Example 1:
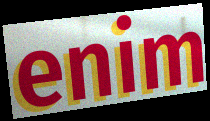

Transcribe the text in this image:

enim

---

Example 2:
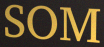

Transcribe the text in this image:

SOM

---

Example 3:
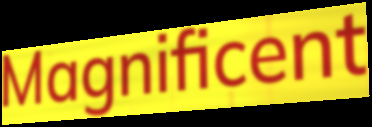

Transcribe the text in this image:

Magnificent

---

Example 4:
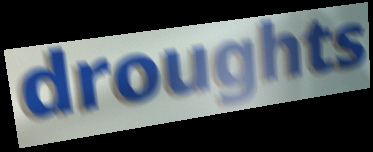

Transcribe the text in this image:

droughts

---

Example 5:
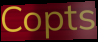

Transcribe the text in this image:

Copts